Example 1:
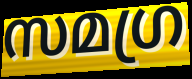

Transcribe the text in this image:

സമഗ്ര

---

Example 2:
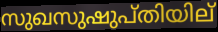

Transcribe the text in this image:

സുഖസുഷുപ്തിയില്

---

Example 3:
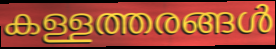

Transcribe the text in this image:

കള്ളത്തരങ്ങൾ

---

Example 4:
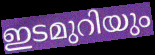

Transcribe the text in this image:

ഇടമുറിയും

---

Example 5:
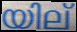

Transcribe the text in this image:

യില്